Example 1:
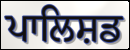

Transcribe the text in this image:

ਪਾਲਿਸ਼ਡ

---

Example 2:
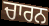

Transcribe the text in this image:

ਚਾਰਨ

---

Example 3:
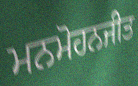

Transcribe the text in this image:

ਮਨਮੋਹਨਜੀਤ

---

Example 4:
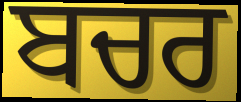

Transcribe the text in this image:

ਬਚਰ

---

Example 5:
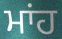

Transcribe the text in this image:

ਮਾਂਹ